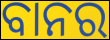
ବାନର